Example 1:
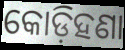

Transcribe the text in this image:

କୋଡ଼ିହଣା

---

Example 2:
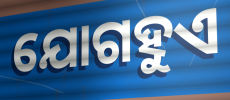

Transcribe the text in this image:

ଯୋଗହୁଏ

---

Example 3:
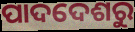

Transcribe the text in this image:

ପାଦଦେଶରୁ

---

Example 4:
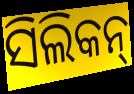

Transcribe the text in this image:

ସିଲିକନ୍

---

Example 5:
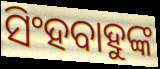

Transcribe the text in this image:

ସିଂହବାହୁଙ୍କ